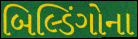
બિલ્ડિંગોના